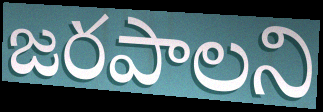
జరపాలని